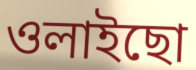
ওলাইছো